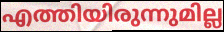
എത്തിയിരുന്നുമില്ല